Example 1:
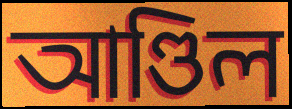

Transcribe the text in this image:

আণ্ডিল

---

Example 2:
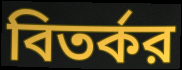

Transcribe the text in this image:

বিতর্কর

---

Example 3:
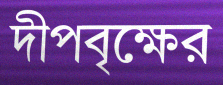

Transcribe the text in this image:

দীপবৃক্ষের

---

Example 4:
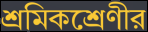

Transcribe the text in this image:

শ্রমিকশ্রেণীর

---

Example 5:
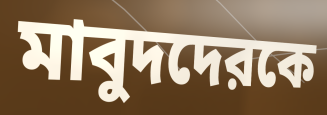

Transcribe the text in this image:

মাবুদদেরকে